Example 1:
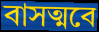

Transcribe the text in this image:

বাসত্মবে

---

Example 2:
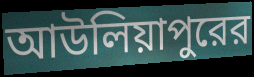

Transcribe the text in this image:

আউলিয়াপুরের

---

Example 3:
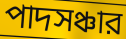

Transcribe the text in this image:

পাদসঞ্চার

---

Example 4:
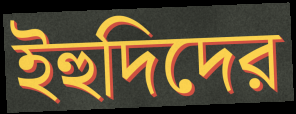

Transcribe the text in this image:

ইহুদিদের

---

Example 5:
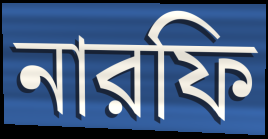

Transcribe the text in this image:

নারফি